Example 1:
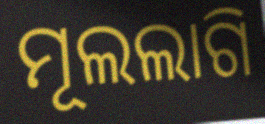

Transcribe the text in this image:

ମୂଲଲାଗି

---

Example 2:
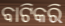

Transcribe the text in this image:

ବାଟିକରି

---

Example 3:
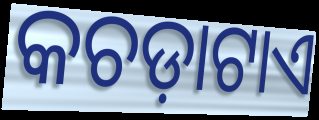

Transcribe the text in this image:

କଚଡ଼ାଟାଏ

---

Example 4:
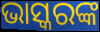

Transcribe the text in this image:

ଭାସ୍କରଙ୍କ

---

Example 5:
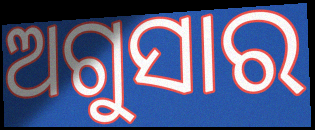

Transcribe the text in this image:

ଅଗୁସାର